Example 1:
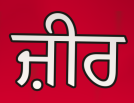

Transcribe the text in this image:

ਜ਼ੀਰ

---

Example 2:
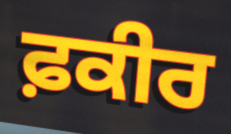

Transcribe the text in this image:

ਫ਼ਕੀਰ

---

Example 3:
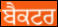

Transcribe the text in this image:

ਬੈਕਟਰ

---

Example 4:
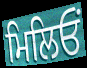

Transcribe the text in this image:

ਮਿਲਿਓਂ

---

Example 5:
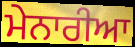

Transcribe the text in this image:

ਮੇਨਾਰੀਆ